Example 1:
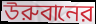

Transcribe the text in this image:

উরুবানের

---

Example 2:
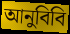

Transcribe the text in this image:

আনুবিবি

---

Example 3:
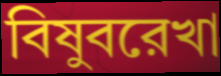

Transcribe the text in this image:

বিষুবরেখা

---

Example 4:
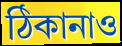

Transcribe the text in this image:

ঠিকানাও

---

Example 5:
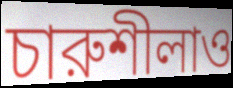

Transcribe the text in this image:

চারুশীলাও